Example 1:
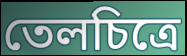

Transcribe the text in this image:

তেলচিত্রে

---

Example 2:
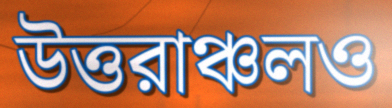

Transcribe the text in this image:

উত্তরাঞ্চলও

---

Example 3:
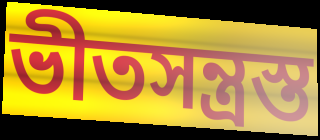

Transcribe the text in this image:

ভীতসন্ত্রস্ত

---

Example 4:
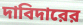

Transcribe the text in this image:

দাবিদারের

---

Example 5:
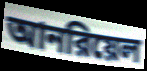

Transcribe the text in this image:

আনরিয়েল